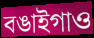
বঙাইগাও